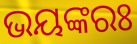
ଭୟଙ୍କରଃ